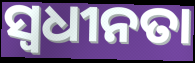
ସ୍ୱଧୀନତା